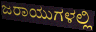
ಜರಾಯುಗಳಲ್ಲಿ